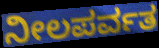
ನೀಲಪರ್ವತ